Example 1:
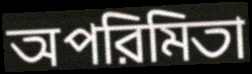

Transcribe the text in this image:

অপরিমিতা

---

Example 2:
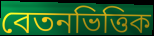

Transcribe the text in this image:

বেতনভিত্তিক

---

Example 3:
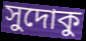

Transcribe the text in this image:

সুদোকু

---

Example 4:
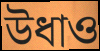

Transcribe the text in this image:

উধাও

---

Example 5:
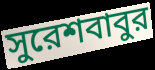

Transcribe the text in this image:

সুরেশবাবুর